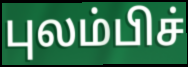
புலம்பிச்